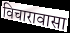
विचारावासा